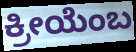
ಕ್ರೀಯೆಂಬ